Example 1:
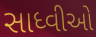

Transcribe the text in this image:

સાધ્વીઓ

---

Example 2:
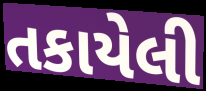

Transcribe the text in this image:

તકાયેલી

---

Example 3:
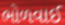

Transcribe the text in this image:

ભોળવાઈ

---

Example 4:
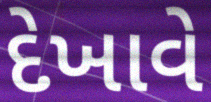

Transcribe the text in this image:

દેખાવે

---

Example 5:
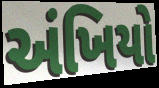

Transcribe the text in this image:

અંખિયો